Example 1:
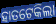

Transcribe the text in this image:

ହାତଟେକିଲା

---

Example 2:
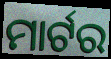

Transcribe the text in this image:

ମାର୍ଟର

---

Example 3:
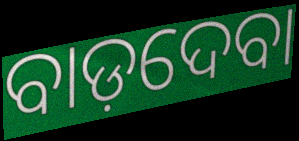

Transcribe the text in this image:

ବାଡ଼ଦେବା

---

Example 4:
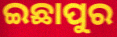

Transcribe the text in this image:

ଇଛାପୁର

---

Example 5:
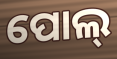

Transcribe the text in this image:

ପୋଲ୍